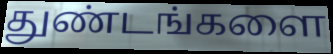
துண்டங்களை